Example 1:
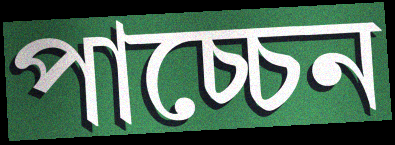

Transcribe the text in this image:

পাচ্চেন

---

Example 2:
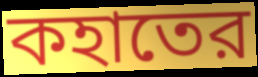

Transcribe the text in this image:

কহাতের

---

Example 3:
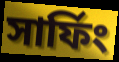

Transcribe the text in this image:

সার্ফিং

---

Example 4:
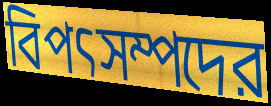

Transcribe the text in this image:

বিপৎসম্পদের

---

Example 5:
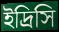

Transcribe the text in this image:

ইদ্রিসি